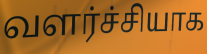
வளர்ச்சியாக